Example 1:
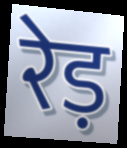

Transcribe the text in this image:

रेड़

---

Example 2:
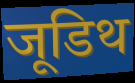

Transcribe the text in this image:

जूडिथ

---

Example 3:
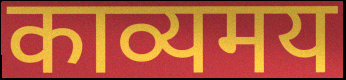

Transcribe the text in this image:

काव्यमय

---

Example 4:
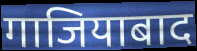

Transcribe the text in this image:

गाजियाबाद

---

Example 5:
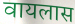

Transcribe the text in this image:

वायलास